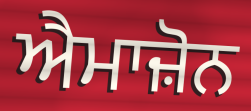
ਐਮਾਜ਼ੋਨ